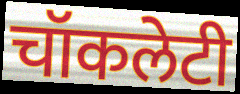
चॉकलेटी